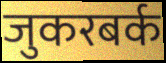
जुकरबर्क